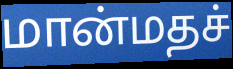
மான்மதச்